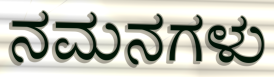
ನಮನಗಳು